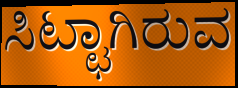
ಸಿಟ್ಟಾಗಿರುವ